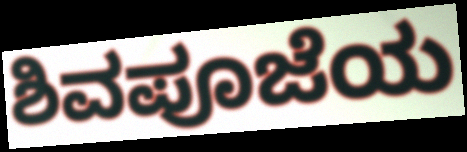
ಶಿವಪೂಜೆಯ